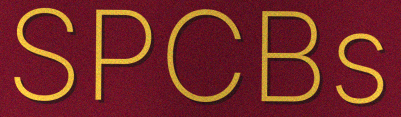
SPCBs